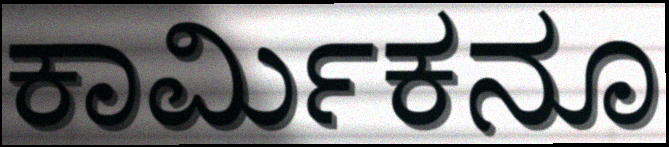
ಕಾರ್ಮಿಕನೂ